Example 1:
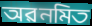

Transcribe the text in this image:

অৱনমিত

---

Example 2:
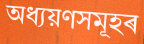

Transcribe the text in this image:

অধ্যয়ণসমূহৰ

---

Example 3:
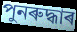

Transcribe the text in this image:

পুনৰুদ্ধাৰ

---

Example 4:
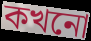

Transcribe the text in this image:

কখনো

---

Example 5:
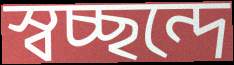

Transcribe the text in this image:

স্বচ্ছন্দে